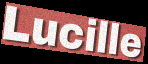
Lucille